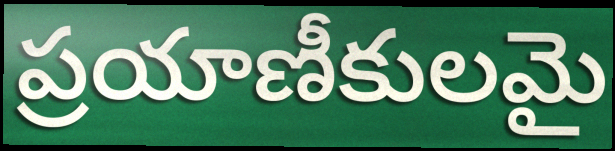
ప్రయాణీకులమై